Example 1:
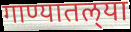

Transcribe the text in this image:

गाण्यातल्या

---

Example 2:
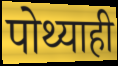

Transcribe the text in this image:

पोथ्याही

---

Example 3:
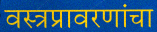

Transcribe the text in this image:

वस्त्रप्रावरणांचा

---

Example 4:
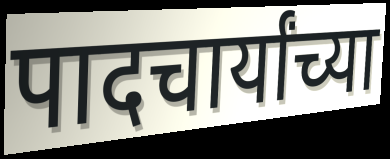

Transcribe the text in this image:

पादचार्यांच्या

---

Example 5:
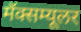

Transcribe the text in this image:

मॅक्सम्यूलर